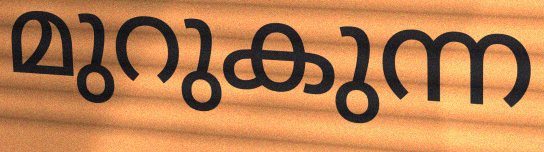
മുറുകുന്ന